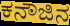
ಕನೌಜಿನ